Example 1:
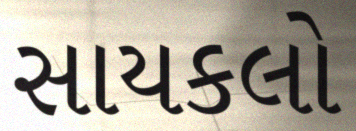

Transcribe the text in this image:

સાયકલો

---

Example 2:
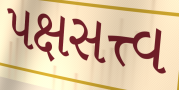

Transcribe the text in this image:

પક્ષસત્ત્વ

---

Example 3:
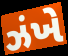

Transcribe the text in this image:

ઝંખે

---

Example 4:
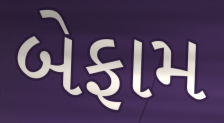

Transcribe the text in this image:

બેફામ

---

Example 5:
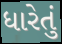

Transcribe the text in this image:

ધારેતું